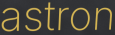
astron